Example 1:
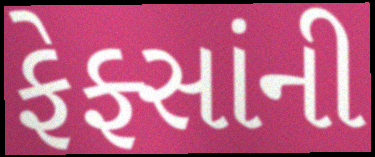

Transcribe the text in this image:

ફેફ્સાંની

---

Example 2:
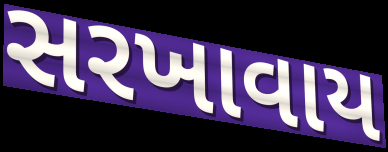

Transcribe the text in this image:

સરખાવાય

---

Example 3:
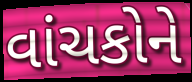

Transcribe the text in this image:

વાંચકોને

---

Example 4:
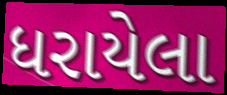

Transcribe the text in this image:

ધરાયેલા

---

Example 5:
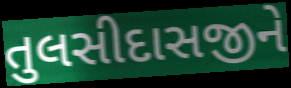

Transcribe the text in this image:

તુલસીદાસજીને